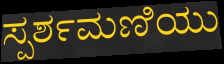
ಸ್ಪರ್ಶಮಣಿಯು